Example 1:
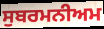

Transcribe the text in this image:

ਸੁਬਰਮਨੀਅਮ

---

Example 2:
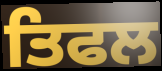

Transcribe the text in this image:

ਤਿਫਲ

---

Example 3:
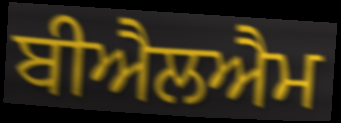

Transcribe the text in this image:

ਬੀਐਲਐਮ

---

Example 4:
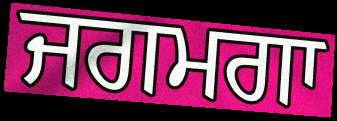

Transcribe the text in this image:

ਜਗਮਗਾ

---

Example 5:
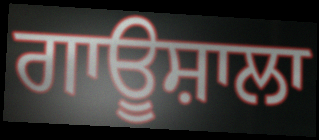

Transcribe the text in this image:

ਗਾਊਸ਼ਾਲਾ